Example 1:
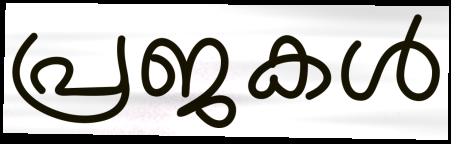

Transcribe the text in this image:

പ്രജകൾ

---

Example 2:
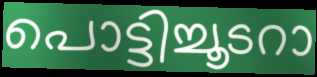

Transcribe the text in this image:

പൊട്ടിച്ചൂടറാ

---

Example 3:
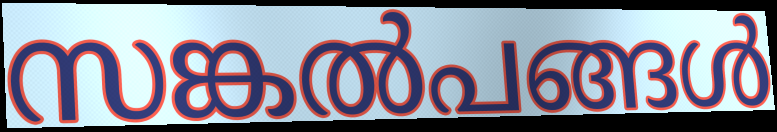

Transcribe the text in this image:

സങ്കൽപങ്ങൾ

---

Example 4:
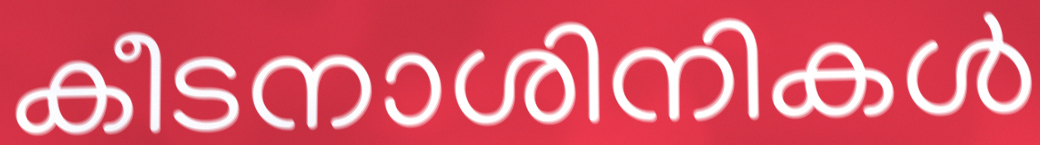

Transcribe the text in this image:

കീടനാശിനികൾ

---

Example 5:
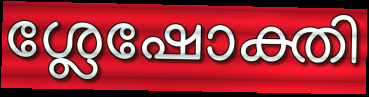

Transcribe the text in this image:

ശ്ലേഷോക്തി